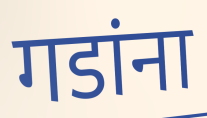
गडांना